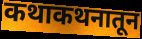
कथाकथनातून